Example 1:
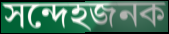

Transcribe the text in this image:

সন্দেহজনক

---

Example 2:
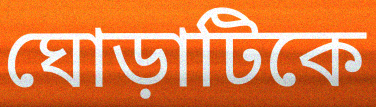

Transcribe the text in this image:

ঘোড়াটিকে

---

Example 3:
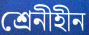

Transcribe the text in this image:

শ্রেনীহীন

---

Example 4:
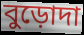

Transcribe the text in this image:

বুড়োদা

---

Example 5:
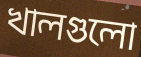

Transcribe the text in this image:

খালগুলো